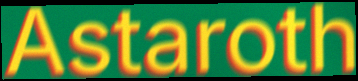
Astaroth